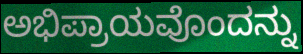
ಅಭಿಪ್ರಾಯವೊಂದನ್ನು